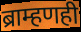
ब्राम्हणही